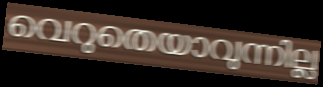
വെറുതെയാവുന്നില്ല